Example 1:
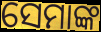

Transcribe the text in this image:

ସେମାଙ୍କ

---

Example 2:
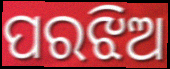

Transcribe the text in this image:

ପରଝିଅ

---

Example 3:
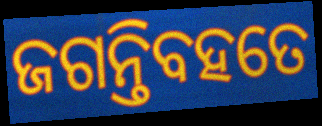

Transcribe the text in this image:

ଜଗନ୍ତିବହତେ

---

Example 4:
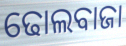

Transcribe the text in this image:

ଢୋଲବାଜା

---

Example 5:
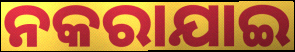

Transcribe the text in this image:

ନକରାଯାଇ